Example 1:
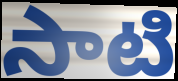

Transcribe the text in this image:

సాటి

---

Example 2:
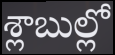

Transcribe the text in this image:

శ్లాబుల్లో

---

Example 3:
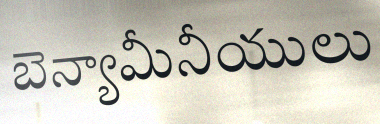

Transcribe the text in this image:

బెన్యామీనీయులు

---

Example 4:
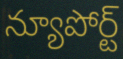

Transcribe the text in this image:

న్యూపోర్ట్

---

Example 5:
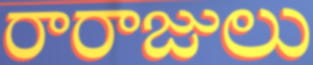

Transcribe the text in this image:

రారాజులు